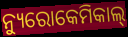
ନ୍ୟୁରୋକେମିକାଲ୍